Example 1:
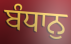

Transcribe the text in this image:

ਬੰਧਾਨੁ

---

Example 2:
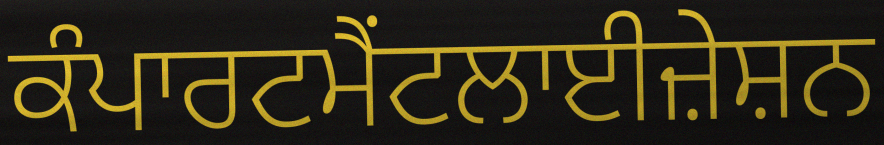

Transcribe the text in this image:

ਕੰਪਾਰਟਮੈਂਟਲਾਈਜ਼ੇਸ਼ਨ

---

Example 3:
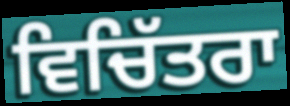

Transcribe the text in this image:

ਵਿਚਿੱਤਰਾ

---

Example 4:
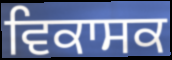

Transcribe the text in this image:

ਵਿਕਾਸਕ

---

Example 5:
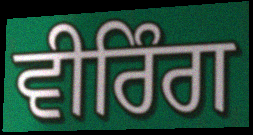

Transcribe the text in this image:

ਵੀਰਿੰਗ